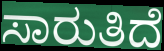
ಸಾರುತಿದೆ